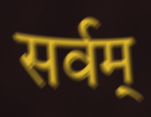
सर्वम्